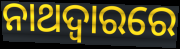
ନାଥଦ୍ୱାରରେ